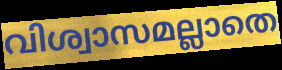
വിശ്വാസമല്ലാതെ